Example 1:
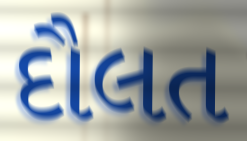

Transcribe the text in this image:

દૌલત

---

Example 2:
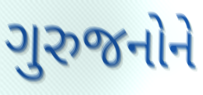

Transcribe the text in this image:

ગુરુજનોને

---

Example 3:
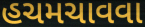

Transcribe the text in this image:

હચમચાવવા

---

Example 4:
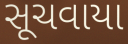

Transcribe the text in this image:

સૂચવાયા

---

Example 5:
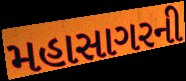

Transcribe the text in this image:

મહાસાગરની